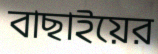
বাছাইয়ের